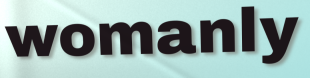
womanly